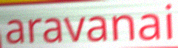
aravanai